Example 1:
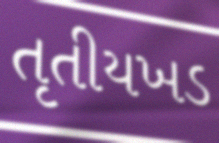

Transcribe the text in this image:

તૃતીયખડ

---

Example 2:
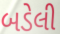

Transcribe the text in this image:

બડેલી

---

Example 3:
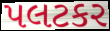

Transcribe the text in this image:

પલટકર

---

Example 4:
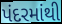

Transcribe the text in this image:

પંદરમાંથી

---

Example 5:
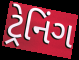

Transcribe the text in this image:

ટ્રેનિંગ